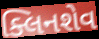
ક્લિનશેવ